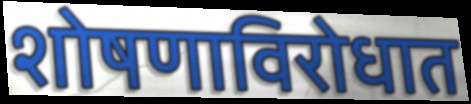
शोषणाविरोधात